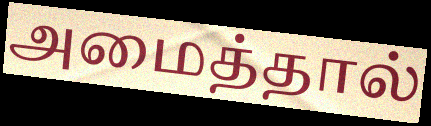
அமைத்தால்